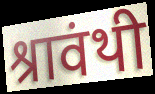
श्रावंथी